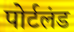
पोर्टलंड